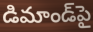
డిమాండ్‌పై